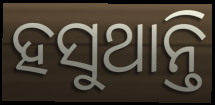
ହସୁଥାନ୍ତି